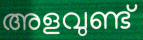
അളവുണ്ട്